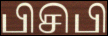
பிசிபி